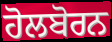
ਹੋਲਬੋਰਨ